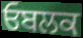
ਓਬਲਕ